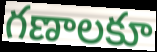
గణాలకూ